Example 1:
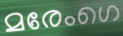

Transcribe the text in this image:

മരേംഗെ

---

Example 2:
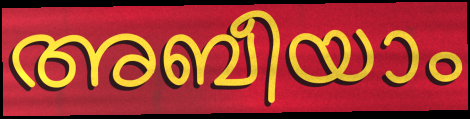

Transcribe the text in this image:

അബീയാം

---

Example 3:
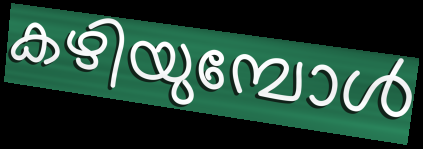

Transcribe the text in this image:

കഴിയുമ്പോൾ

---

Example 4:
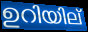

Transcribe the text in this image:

ഉറിയില്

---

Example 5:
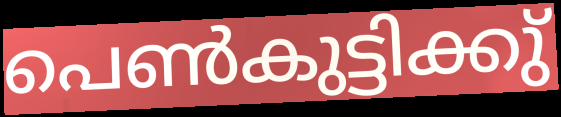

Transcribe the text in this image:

പെൺകുട്ടിക്കു്